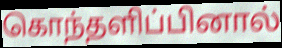
கொந்தளிப்பினால்